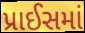
પ્રાઈસમાં